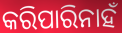
କରିପାରିନାହଁ